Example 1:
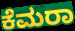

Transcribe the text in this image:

ಕೆಮರಾ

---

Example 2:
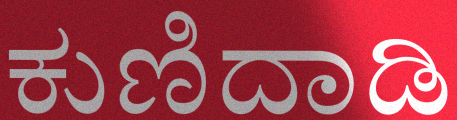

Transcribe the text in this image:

ಕುಣಿದಾಡಿ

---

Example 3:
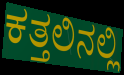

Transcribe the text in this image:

ಕತ್ತಲಿನಲ್ಲಿ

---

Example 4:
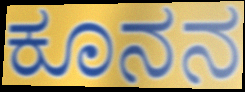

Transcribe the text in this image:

ಕೂನನ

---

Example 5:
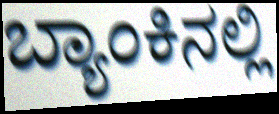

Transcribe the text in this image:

ಬ್ಯಾಂಕಿನಲ್ಲಿ